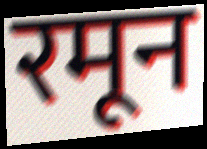
रमून